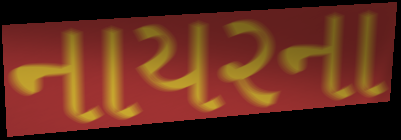
નાયરના